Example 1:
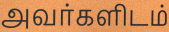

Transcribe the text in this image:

அவர்களிடம்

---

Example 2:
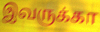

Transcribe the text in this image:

இவருக்கா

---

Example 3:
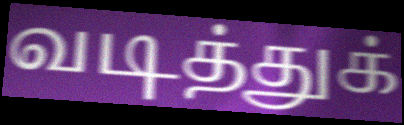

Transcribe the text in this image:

வடித்துக்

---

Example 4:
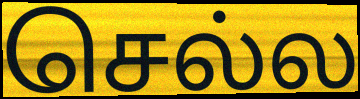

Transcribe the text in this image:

செல்ல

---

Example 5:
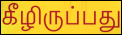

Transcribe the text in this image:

கீழிருப்பது